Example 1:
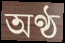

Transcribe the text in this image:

অণ্ঠ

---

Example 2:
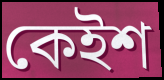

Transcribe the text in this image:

কেইশ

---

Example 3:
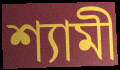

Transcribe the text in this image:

শ্যামী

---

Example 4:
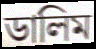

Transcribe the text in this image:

ডালিম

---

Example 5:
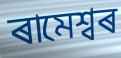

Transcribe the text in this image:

ৰামেশ্বৰ